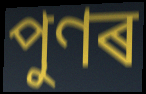
পুণৰ